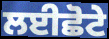
ਲਈਛੋਟੇ